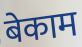
बेकाम